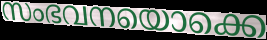
സംഭവനയൊക്കെ